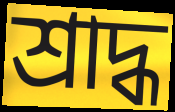
শ্রাদ্ধ